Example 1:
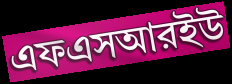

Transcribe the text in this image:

এফএসআরইউ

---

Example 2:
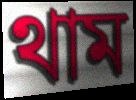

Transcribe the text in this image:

থাম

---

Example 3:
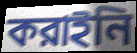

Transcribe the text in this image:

করাইনি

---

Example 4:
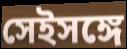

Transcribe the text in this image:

সেইসঙ্গে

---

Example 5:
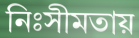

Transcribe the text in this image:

নিঃসীমতায়